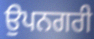
ਉਪਨਗਰੀ